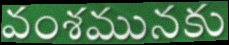
వంశమునకు